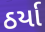
ઠર્યા